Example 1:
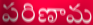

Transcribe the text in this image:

పరిణామ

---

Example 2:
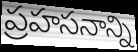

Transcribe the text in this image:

ప్రహసనాన్ని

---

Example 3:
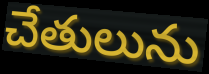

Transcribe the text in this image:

చేతులును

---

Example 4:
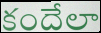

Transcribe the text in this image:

కందేలా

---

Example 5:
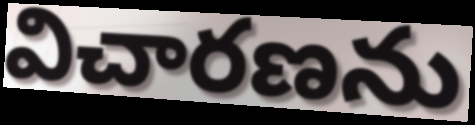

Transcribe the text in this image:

విచారణను